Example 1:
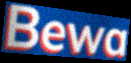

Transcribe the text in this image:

Bewa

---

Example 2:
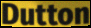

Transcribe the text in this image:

Dutton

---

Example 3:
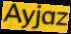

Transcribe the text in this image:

Ayjaz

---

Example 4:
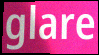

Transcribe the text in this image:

glare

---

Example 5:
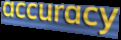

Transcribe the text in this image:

accuracy